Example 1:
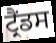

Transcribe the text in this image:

ਟ੍ਰੈਂਡਸ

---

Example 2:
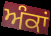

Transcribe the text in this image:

ਅੰਕਾਂ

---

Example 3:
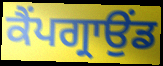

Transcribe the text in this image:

ਕੈਂਪਗ੍ਰਾਉਂਡ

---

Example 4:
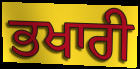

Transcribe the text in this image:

ਭਖਾਰੀ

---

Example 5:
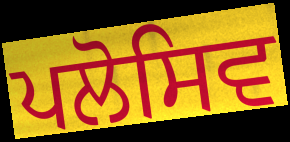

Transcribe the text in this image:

ਪਲੋਸਿਵ